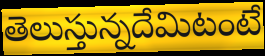
తెలుస్తున్నదేమిటంటే